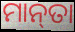
ମାନ୍‌ତା